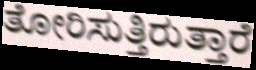
ತೋರಿಸುತ್ತಿರುತ್ತಾರೆ